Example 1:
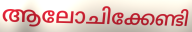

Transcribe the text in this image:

ആലോചിക്കേണ്ടി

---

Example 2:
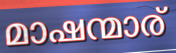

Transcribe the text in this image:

മാഷന്മാര്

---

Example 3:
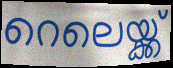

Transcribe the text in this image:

റെലെയ്ക്ക്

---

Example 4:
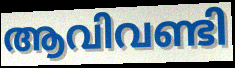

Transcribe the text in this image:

ആവിവണ്ടി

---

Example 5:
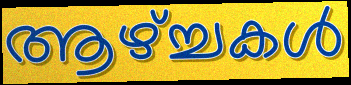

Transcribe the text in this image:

ആഴ്ച്ചകൾ